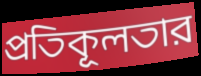
প্রতিকূলতার